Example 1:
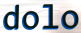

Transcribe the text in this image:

dolo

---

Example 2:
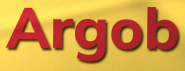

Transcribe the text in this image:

Argob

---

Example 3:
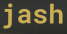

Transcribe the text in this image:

jash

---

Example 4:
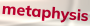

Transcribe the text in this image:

metaphysis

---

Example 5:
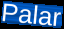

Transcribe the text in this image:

Palar